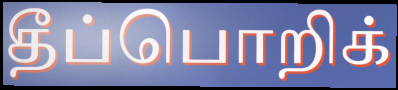
தீப்பொறிக்